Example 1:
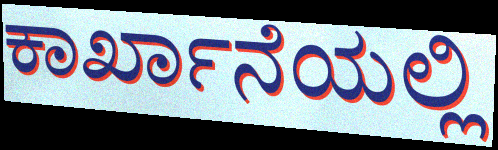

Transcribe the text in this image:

ಕಾರ್ಖಾನೆಯಲ್ಲಿ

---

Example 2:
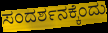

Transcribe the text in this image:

ಸಂದರ್ಶನಕ್ಕೆಂದು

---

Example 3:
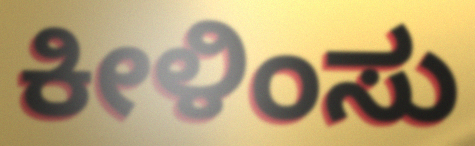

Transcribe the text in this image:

ಕೀಳಿಂಸು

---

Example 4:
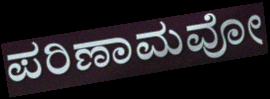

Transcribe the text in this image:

ಪರಿಣಾಮವೋ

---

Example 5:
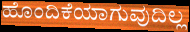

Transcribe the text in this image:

ಹೊಂದಿಕೆಯಾಗುವುದಿಲ್ಲ